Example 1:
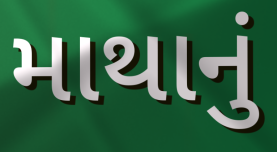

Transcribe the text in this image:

માથાનું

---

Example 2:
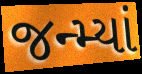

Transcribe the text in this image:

જન્મ્યાં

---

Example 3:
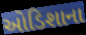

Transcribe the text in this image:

ઓડિશાના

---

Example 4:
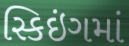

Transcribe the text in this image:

સ્કિઇંગમાં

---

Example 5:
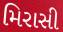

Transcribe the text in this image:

મિરાસી